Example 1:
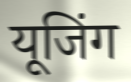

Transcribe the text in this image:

यूजिंग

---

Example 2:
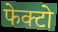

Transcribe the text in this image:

फेक्टो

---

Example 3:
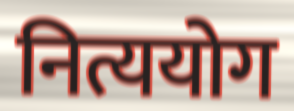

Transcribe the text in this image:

नित्ययोग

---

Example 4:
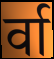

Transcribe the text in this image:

र्वा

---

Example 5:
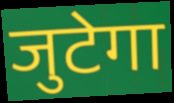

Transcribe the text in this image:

जुटेगा